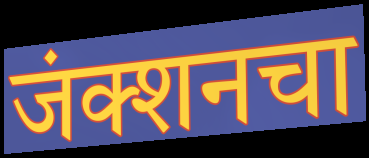
जंक्‍शनचा